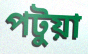
পটুয়া